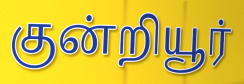
குன்றியூர்